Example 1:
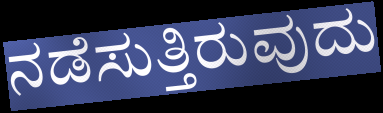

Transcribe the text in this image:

ನಡೆಸುತ್ತಿರುವುದು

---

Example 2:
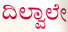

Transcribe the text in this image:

ದಿಲ್ವಾಲೇ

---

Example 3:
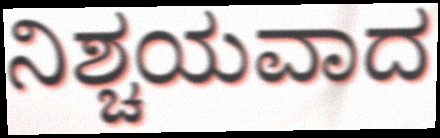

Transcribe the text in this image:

ನಿಶ್ಚಯವಾದ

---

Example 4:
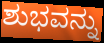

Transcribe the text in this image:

ಶುಭವನ್ನು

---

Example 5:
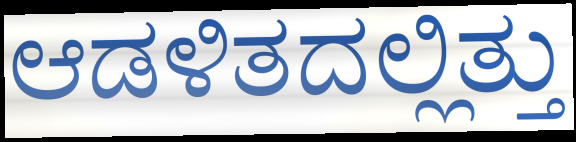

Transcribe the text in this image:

ಆಡಳಿತದಲ್ಲಿತ್ತು